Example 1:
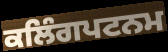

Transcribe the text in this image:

ਕਲਿੰਗਪਟਨਮ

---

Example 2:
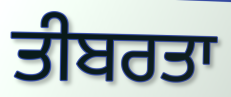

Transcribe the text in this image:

ਤੀਬਰਤਾ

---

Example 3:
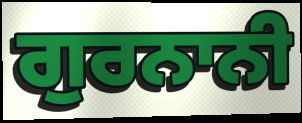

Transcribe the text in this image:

ਗੁਰਨਾਨੀ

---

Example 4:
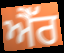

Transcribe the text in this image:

ਐੱਰ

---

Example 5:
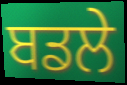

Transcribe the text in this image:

ਬਡਲੇ